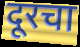
दूरचा